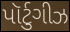
પૉર્ટુગીઝ